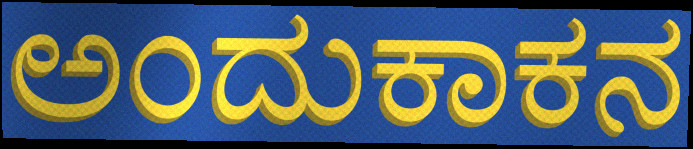
ಅಂದುಕಾಕನ